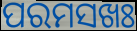
ପରମସଖଃ